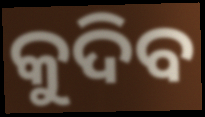
କୁଦିବ